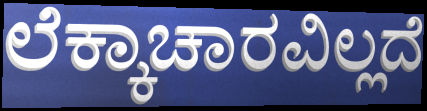
ಲೆಕ್ಕಾಚಾರವಿಲ್ಲದೆ